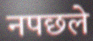
नपछले